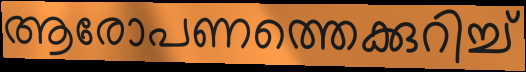
ആരോപണത്തെക്കുറിച്ച്